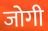
जोगी